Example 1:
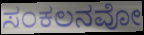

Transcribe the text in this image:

ಸಂಕಲನವೋ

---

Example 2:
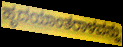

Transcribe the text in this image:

ಹೃದಯಾಂತರಾಳವನ್ನು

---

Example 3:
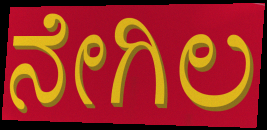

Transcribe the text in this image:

ನೇಗಿಲ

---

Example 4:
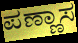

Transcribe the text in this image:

ಪಣ್ಣಾಸ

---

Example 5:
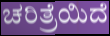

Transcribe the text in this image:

ಚರಿತ್ರೆಯಿದೆ